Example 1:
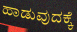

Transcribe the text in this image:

ಹಾಡುವುದಕ್ಕೆ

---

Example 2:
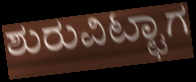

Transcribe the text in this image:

ಶುರುವಿಟ್ಟಾಗ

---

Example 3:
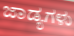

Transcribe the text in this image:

ಜಾಡ್ಯಗಳು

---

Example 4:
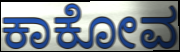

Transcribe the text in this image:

ಕಾಕೋವ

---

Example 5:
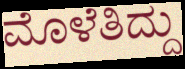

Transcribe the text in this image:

ಮೊಳೆತಿದ್ದು